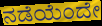
ನಡೆಯೆಂದೇ